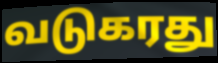
வடுகரது